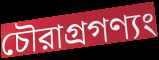
চৌরাগ্রগণ্যং